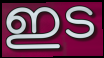
ഇട